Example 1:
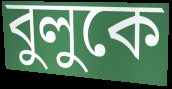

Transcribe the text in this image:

বুলুকে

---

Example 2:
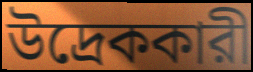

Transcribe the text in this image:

উদ্রেককারী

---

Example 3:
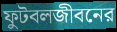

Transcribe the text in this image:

ফুটবলজীবনের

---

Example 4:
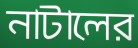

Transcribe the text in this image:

নাটালের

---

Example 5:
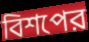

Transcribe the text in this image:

বিশপের